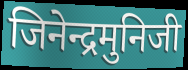
जिनेन्द्रमुनिजी